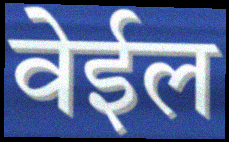
वेईल